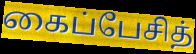
கைப்பேசித்